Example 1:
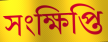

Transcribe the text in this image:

সংক্ষিপ্তি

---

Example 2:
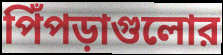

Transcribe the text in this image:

পিঁপড়াগুলোর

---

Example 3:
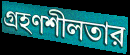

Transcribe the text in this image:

গ্রহণশীলতার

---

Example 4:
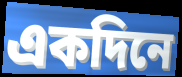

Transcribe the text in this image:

একদিনে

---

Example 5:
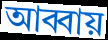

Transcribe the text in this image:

আব্বায়